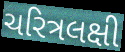
ચરિત્રલક્ષી